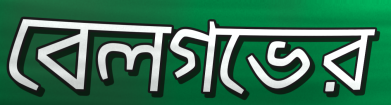
বেলগভের